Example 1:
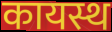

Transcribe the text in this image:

कायस्थ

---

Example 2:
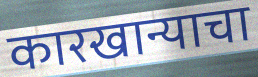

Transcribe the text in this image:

कारखान्याचा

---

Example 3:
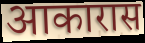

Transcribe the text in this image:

आकारास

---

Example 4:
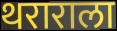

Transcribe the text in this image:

थराराला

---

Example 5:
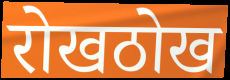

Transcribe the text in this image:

रोखठोख